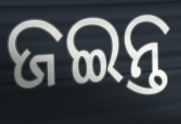
ଜଇନ୍ତ